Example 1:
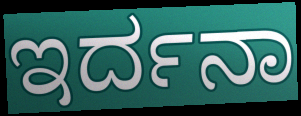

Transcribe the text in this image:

ಇರ್ದನಾ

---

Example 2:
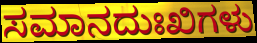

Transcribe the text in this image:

ಸಮಾನದುಃಖಿಗಳು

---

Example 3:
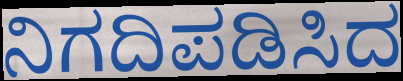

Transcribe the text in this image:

ನಿಗದಿಪಡಿಸಿದ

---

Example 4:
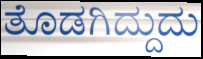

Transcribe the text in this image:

ತೊಡಗಿದ್ದುದು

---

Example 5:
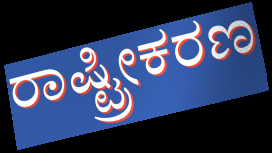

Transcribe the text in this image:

ರಾಷ್ಟ್ರೀಕರಣ